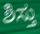
ಶಿಸ್ತು